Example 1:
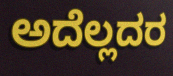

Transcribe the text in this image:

ಅದೆಲ್ಲದರ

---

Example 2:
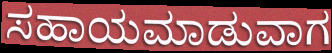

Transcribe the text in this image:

ಸಹಾಯಮಾಡುವಾಗ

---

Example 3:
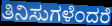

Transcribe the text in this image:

ತಿನಿಸುಗಳೆಂದರೆ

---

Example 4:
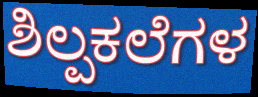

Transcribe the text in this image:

ಶಿಲ್ಪಕಲೆಗಳ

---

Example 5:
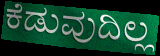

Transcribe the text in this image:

ಕೆಡುವುದಿಲ್ಲ